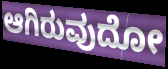
ಆಗಿರುವುದೋ